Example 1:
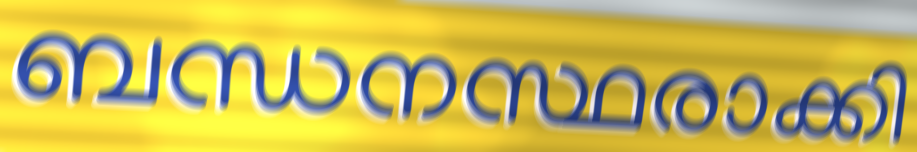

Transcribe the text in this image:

ബന്ധനസ്ഥരാക്കി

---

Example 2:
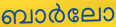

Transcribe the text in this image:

ബാർലോ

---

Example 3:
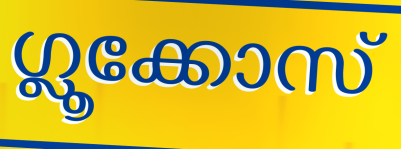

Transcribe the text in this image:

ഗ്ലൂക്കോസ്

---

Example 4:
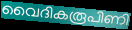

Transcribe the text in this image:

വൈദികരൂപിണി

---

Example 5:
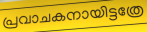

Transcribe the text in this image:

പ്രവാചകനായിട്ടത്രേ